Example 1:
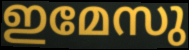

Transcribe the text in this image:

ഇമേസു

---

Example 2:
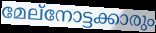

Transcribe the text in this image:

മേല്നോട്ടക്കാരും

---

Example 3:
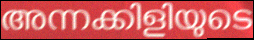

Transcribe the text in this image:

അന്നക്കിളിയുടെ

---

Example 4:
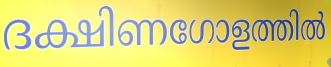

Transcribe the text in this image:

ദക്ഷിണഗോളത്തിൽ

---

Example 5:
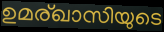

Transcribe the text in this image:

ഉമര്ഖാസിയുടെ